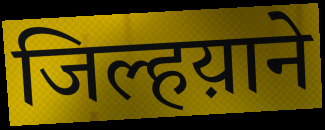
जिल्हय़ाने